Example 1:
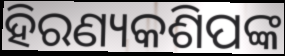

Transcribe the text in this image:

ହିରଣ୍ୟକଶିପଙ୍କ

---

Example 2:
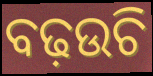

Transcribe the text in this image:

ବଢ଼ଉଚି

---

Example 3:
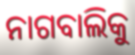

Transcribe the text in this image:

ନାଗବାଲିକୁ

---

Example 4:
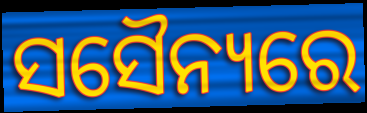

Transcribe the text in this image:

ସସୈନ୍ୟରେ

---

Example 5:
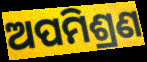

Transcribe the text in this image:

ଅପମିଶ୍ରଣ